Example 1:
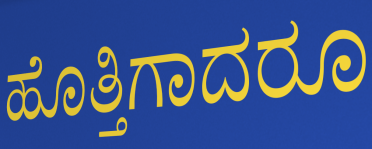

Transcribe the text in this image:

ಹೊತ್ತಿಗಾದರೂ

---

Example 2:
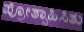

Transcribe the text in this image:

ಪ್ರೋತ್ಸಾಹಿಸಿತು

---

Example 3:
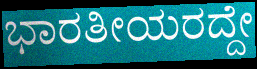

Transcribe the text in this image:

ಭಾರತೀಯರದ್ದೇ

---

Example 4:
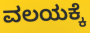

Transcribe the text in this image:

ವಲಯಕ್ಕೆ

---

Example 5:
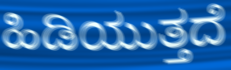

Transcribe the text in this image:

ಹಿಡಿಯುತ್ತದೆ